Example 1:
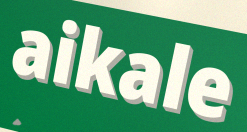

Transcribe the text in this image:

aikale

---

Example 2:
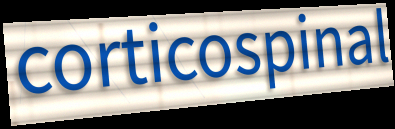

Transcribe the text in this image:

corticospinal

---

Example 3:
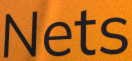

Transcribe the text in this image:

Nets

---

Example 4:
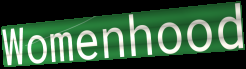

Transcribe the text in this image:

Womenhood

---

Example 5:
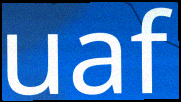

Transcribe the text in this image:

uaf